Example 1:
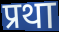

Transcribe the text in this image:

प्रथा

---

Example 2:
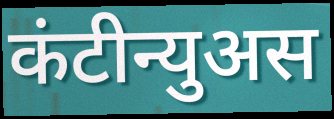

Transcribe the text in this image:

कंटीन्युअस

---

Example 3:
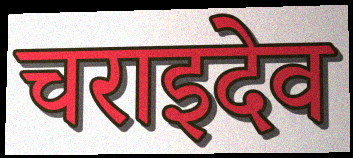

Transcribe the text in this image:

चराइदेव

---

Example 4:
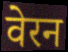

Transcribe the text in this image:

वेरन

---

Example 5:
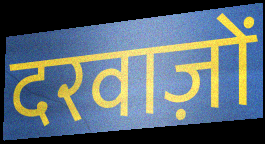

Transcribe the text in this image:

दरवाज़ों